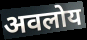
अवलोय